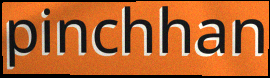
pinchhan